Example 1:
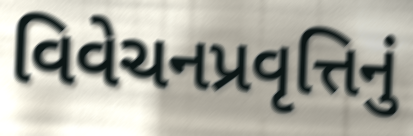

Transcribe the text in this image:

વિવેચનપ્રવૃત્તિનું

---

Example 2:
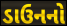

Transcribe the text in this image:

ડાઉનનો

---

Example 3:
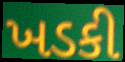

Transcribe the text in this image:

ખડકી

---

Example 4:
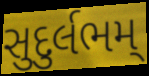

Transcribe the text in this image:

સુદુર્લભમ્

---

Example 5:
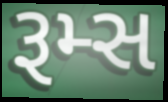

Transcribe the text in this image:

રૂમ્સ